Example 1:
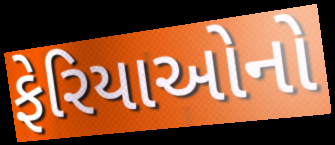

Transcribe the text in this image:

ફેરિયાઓનો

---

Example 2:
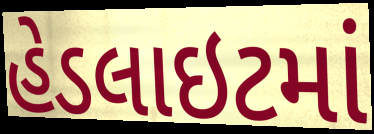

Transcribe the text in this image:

હેડલાઇટમાં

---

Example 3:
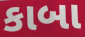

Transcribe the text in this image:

કાબા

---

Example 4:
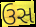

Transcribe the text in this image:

ઉસ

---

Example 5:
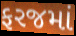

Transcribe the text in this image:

ફરજમાં